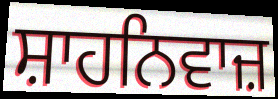
ਸ਼ਾਹਨਿਵਾਜ਼